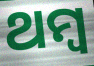
ଥମ୍ବ